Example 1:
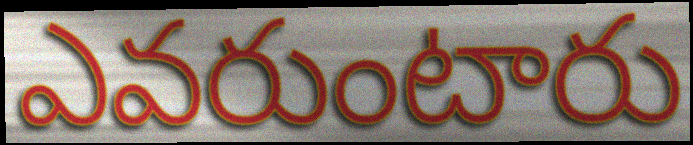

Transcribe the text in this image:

ఎవరుంటారు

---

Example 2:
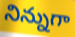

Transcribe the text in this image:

నిన్నుగా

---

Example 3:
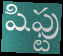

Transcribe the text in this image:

షిఫ్టు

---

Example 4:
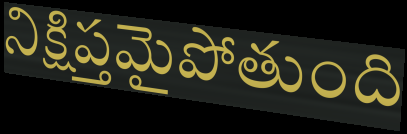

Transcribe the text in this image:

నిక్షిప్తమైపోతుంది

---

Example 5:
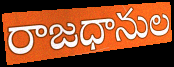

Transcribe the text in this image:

రాజధానుల